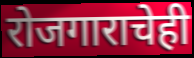
रोजगाराचेही